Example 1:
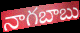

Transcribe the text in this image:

నాగబాబు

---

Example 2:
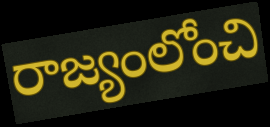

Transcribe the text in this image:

రాజ్యంలోంచి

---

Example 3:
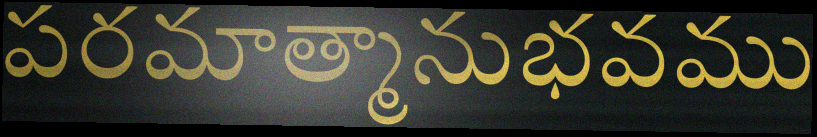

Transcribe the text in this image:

పరమాత్మానుభవము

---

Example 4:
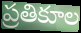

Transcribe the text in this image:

ప్రతికూల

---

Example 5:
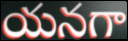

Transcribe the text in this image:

యనగా